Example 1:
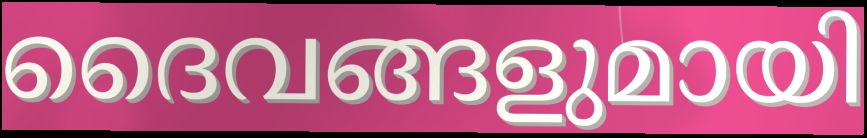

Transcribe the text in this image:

ദൈവങ്ങളുമായി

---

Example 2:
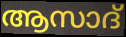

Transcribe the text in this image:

ആസാദ്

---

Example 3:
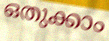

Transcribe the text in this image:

ഒതുക്കാം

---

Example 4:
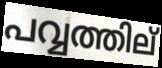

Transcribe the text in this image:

പവ്വത്തില്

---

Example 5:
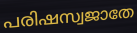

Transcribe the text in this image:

പരിഷസ്വജാതേ